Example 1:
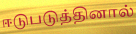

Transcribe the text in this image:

ஈடுபடுத்தினால்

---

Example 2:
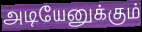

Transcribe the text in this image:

அடியேனுக்கும்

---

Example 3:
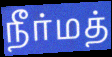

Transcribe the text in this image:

நீர்மத்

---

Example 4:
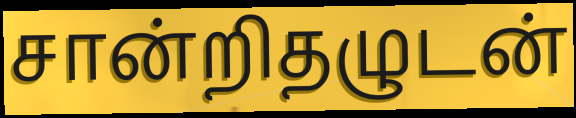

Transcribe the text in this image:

சான்றிதழுடன்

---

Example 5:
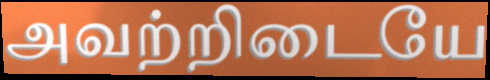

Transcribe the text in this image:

அவற்றிடையே